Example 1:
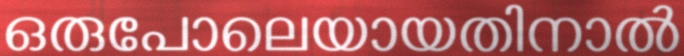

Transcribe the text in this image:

ഒരുപോലെയായതിനാൽ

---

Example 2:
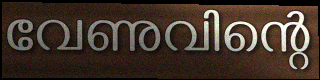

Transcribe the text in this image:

വേണുവിന്റെ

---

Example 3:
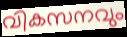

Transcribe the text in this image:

വികസനവും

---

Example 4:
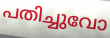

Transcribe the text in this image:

പതിച്ചുവോ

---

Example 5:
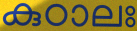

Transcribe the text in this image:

കുഠാലഃ